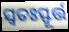
ସ୍ୱତଃସ୍ଫୂର୍ତ୍ତ